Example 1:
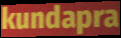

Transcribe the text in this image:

kundapra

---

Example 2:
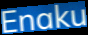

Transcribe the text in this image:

Enaku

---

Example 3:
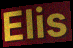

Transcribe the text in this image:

Elis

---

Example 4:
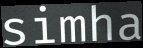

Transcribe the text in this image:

simha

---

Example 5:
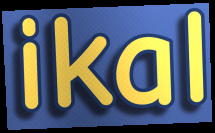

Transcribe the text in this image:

ikal